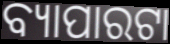
ବ୍ୟାପାରଟା